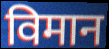
विमान